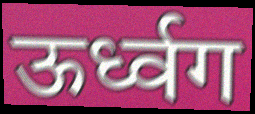
ऊर्ध्वग